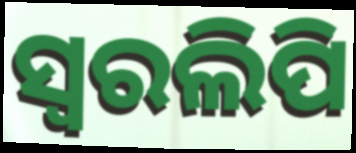
ସ୍ଵରଲିପି